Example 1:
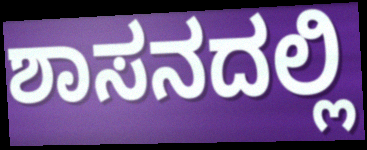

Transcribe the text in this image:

ಶಾಸನದಲ್ಲಿ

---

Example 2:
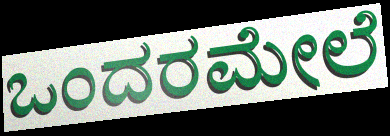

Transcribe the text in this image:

ಒಂದರಮೇಲೆ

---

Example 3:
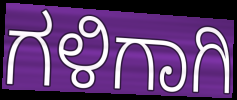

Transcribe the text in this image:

ಗಳಿಗಾಗಿ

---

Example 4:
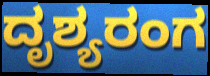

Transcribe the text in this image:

ದೃಶ್ಯರಂಗ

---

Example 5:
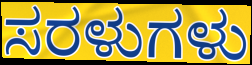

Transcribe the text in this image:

ಸರಳುಗಳು